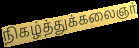
நிகழ்த்துக்கலைஞர்